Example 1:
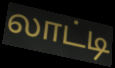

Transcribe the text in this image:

லாட்டி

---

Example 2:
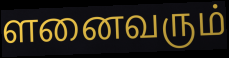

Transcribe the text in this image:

ளனைவரும்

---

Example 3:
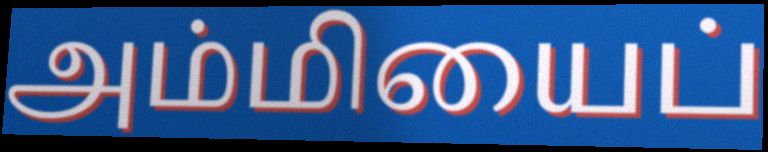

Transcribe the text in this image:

அம்மியைப்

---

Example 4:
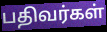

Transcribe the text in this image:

பதிவர்கள்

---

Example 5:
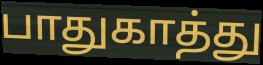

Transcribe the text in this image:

பாதுகாத்து